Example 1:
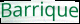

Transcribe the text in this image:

Barrique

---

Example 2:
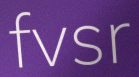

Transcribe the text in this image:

fvsr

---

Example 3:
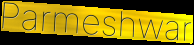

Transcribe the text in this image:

Parmeshwar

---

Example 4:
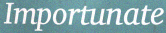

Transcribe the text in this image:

Importunate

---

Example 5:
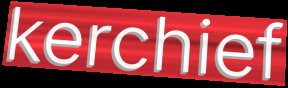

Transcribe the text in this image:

kerchief